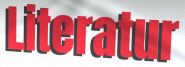
Literatur